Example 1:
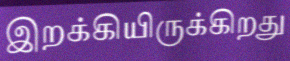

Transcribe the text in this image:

இறக்கியிருக்கிறது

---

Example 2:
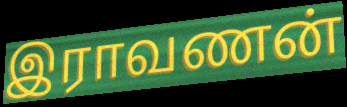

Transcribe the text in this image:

இராவணன்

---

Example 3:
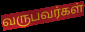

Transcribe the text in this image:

வருபவர்கள்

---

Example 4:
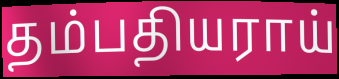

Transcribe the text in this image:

தம்பதியராய்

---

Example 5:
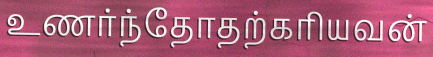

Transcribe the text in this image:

உணர்ந்தோதற்கரியவன்